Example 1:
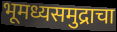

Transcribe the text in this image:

भूमध्यसमुद्राचा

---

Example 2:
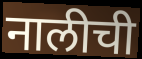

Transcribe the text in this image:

नालीची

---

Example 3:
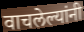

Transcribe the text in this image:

वाचलेल्यांनी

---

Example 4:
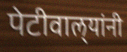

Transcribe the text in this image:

पेटीवाल्यांनी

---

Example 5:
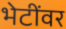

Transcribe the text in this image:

भेटींवर